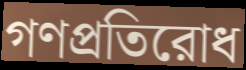
গণপ্রতিরোধ